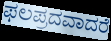
ಫಲಪ್ರದವಾದರೆ